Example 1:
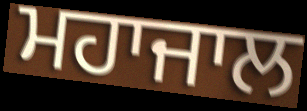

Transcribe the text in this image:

ਮਹਾਜਾਲ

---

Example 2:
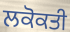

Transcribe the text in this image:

ਲਕੋਕਤੀ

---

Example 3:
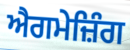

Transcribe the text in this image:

ਐਗਮੇਜ਼ਿੰਗ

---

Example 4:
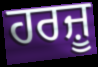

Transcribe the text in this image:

ਹਰਜ਼ੂ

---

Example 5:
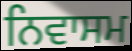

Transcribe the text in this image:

ਨਿਵਾਸਮ